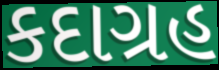
કદાગ્રહ